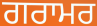
ਗਰਾਮਰ